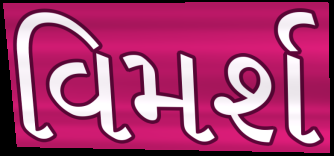
વિમર્શ